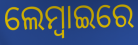
ଲେମ୍ବାଇରେ